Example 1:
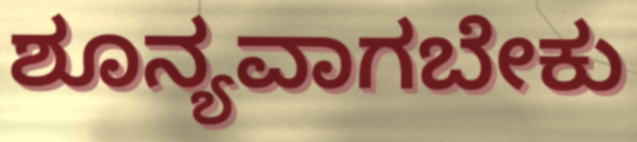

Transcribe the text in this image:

ಶೂನ್ಯವಾಗಬೇಕು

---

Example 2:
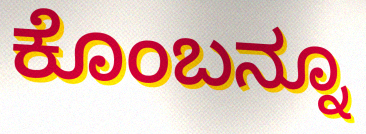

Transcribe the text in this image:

ಕೊಂಬನ್ನೂ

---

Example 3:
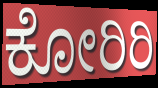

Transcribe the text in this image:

ಕೋರಿರಿ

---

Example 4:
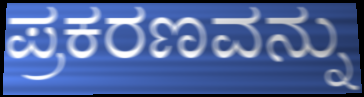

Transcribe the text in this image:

ಪ್ರಕರಣವನ್ನು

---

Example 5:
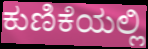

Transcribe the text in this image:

ಕುಣಿಕೆಯಲ್ಲಿ